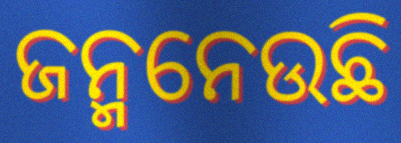
ଜନ୍ମନେଉଛି